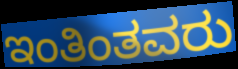
ಇಂತಿಂತವರು